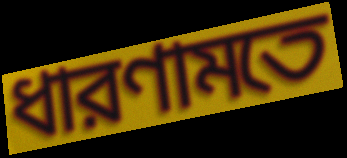
ধারণামতে